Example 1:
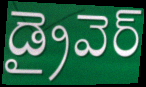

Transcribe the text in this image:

డ్రైవెర్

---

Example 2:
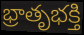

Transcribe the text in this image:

భ్రాతృభక్తి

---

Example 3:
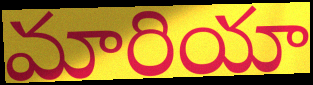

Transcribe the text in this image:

మారియా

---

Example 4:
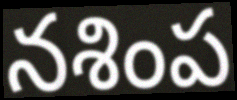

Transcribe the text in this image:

నశింప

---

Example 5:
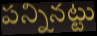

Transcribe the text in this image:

పన్నినట్టు